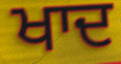
ਖਾਦ